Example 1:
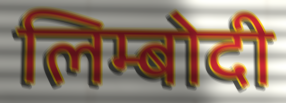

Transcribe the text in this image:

लिम्बोदी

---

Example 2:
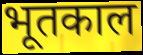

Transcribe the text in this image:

भूतकाल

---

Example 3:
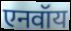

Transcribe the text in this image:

एनवॉय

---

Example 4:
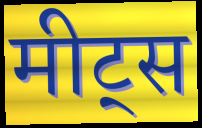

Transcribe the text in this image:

मीट्स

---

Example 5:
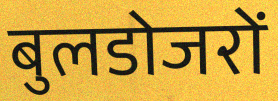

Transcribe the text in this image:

बुलडोजरों